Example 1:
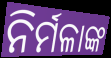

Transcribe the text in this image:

ନିର୍ମଳାଙ୍କ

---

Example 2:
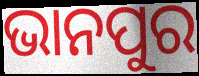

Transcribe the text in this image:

ଭାନପୁର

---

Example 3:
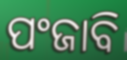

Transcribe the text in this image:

ପଂଜାବି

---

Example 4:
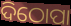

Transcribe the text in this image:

ଦିଠୋପା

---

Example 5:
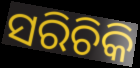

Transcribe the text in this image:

ସରିଚିକି